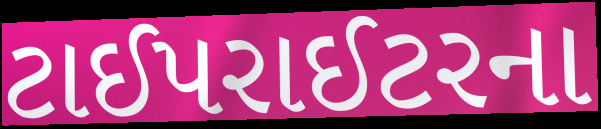
ટાઈપરાઈટરના